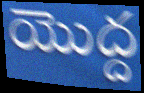
యొద్ద